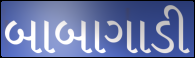
બાબાગાડી